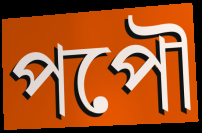
পপৌ